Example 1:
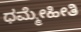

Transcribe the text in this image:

ಧಮ್ಮೇಹೀತಿ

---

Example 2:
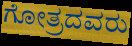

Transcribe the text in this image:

ಗೋತ್ರದವರು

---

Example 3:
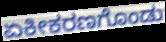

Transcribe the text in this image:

ಏಕೀಕರಣಗೊಂಡು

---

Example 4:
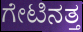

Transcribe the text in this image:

ಗೇಟಿನತ್ತ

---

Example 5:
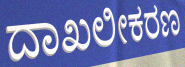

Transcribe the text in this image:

ದಾಖಲೀಕರಣ